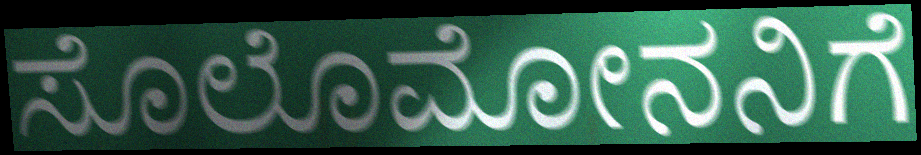
ಸೊಲೊಮೋನನಿಗೆ